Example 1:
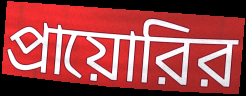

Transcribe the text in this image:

প্রায়োরির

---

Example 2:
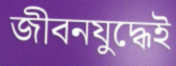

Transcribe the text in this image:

জীবনযুদ্ধেই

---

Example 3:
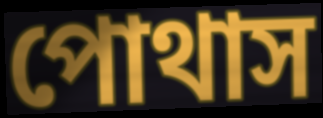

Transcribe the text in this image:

পোথাস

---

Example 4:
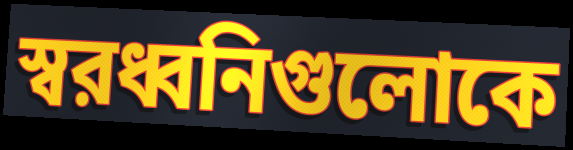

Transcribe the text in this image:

স্বরধ্বনিগুলোকে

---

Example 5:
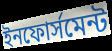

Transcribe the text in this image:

ইনফোর্সমেন্ট